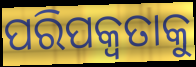
ପରିପକ୍ୱତାକୁ